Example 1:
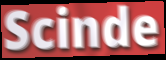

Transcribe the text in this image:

Scinde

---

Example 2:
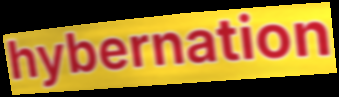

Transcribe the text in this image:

hybernation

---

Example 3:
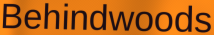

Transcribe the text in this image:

Behindwoods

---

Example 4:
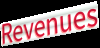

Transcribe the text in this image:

Revenues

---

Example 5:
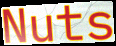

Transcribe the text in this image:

Nuts